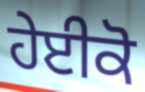
ਹੇਈਕੋ